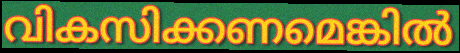
വികസിക്കണമെങ്കിൽ